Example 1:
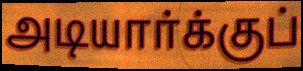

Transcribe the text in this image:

அடியார்க்குப்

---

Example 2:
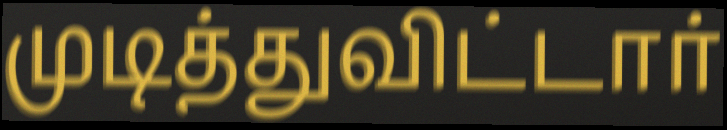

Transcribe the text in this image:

முடித்துவிட்டார்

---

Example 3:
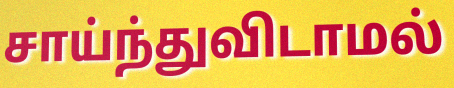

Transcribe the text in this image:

சாய்ந்துவிடாமல்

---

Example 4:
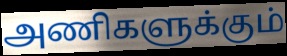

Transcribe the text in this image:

அணிகளுக்கும்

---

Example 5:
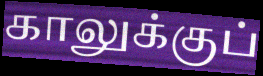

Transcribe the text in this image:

காலுக்குப்